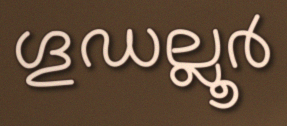
ഗൂഡല്ലൂർ